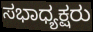
ಸಭಾಧ್ಯಕ್ಷರು